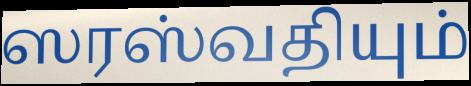
ஸரஸ்வதியும்